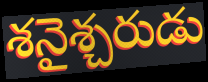
శనైశ్చరుడు